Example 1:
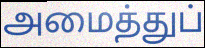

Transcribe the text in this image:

அமைத்துப்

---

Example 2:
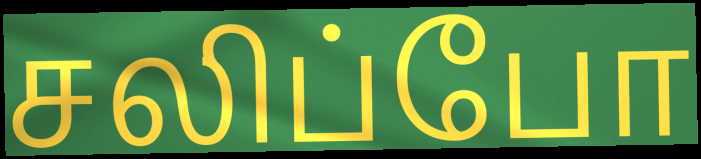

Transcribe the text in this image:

சலிப்போ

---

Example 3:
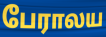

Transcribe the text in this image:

பேராலய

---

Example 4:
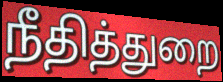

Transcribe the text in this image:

நீதித்துறை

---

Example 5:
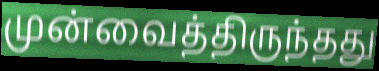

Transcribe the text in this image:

முன்வைத்திருந்தது